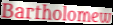
Bartholomew